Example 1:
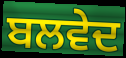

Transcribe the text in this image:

ਬਲਵੇਦ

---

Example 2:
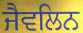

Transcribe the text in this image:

ਜੈਵਲਿਨ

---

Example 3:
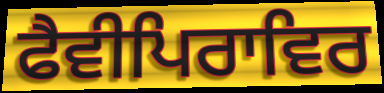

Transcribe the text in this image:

ਫੈਵੀਪਿਰਾਵਿਰ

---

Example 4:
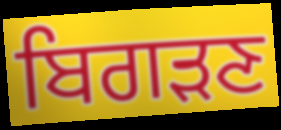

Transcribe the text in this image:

ਬਿਗੜਣ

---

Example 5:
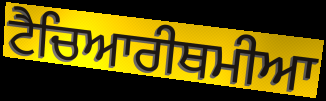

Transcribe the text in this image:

ਟੈਚਿਆਰੀਥਮੀਆ